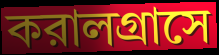
করালগ্রাসে